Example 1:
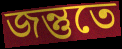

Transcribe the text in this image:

জন্তুতে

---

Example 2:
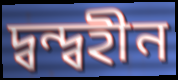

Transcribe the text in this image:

দ্বন্দ্বহীন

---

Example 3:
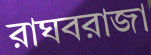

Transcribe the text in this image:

রাঘবরাজা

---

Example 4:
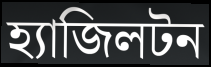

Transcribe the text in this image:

হ্যাজিলটন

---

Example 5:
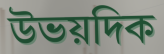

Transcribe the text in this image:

উভয়দিক